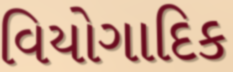
વિયોગાદિક